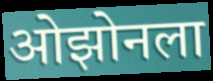
ओझोनला